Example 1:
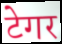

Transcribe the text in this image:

टेगर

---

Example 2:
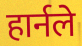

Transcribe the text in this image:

हार्नले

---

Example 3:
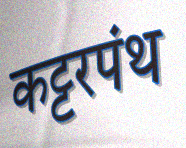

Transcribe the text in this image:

कट्टरपंथ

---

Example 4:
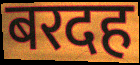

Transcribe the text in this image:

बरदह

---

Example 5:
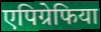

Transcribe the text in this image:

एपिग्रेफिया